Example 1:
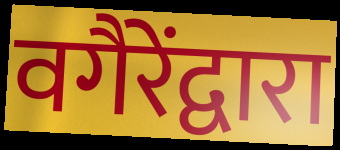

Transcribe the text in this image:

वगैरेंद्वारा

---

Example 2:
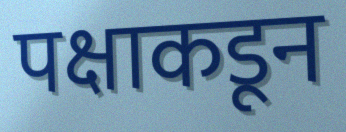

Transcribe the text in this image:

पक्षाकडून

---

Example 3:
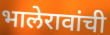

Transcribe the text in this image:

भालेरावांची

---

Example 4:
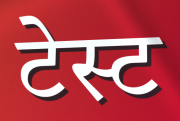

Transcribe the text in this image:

टेस्ट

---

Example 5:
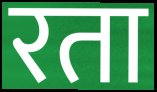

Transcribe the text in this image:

रता